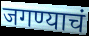
जगण्याचं